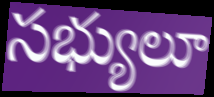
సభ్యులూ